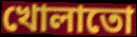
খোলাতো